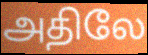
அதிலே